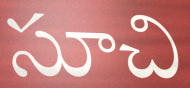
సూచి